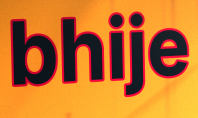
bhije